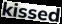
kissed